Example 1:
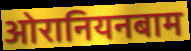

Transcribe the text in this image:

ओरानियनबाम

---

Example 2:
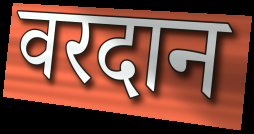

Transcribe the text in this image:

वरदान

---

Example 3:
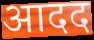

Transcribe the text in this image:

आदद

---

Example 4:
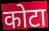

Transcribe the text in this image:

कोटा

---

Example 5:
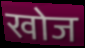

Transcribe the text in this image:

खोज